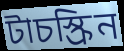
টাচস্ক্রিন